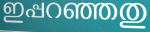
ഇപ്പറഞ്ഞതു